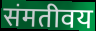
संमतीवय